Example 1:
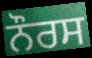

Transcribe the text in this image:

ਨੌਰਸ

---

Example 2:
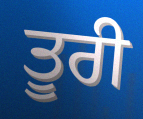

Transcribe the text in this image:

ਤੂਰੀ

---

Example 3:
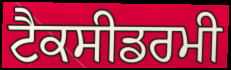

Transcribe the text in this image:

ਟੈਕਸੀਡਰਮੀ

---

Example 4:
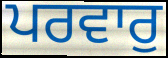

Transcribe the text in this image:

ਪਰਵਾਰੁ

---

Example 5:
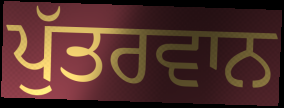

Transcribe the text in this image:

ਪੁੱਤਰਵਾਨ